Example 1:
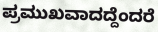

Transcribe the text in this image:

ಪ್ರಮುಖವಾದದ್ದೆಂದರೆ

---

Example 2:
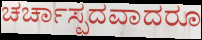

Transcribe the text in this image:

ಚರ್ಚಾಸ್ಪದವಾದರೂ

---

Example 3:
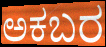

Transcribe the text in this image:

ಅಕಬರ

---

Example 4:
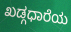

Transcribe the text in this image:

ಖಡ್ಗಧಾರೆಯ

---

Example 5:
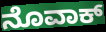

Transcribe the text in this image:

ನೊವಾಕ್